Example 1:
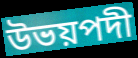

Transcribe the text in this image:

উভয়পদী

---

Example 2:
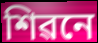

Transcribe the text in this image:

শিৱনে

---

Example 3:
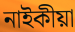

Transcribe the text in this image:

নাইকীয়া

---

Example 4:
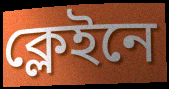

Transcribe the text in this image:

ক্লেইনে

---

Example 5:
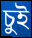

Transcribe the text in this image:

চুই